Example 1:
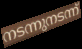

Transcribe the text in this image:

നടന്നുനടന്ന്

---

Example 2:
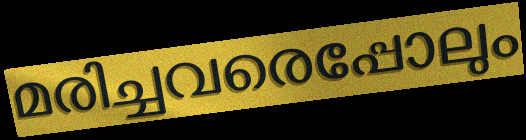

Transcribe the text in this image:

മരിച്ചവരെപ്പോലും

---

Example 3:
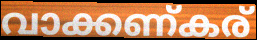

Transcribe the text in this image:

വാക്കണ്കര്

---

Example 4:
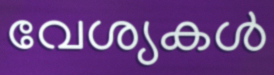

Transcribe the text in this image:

വേശ്യകൾ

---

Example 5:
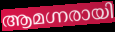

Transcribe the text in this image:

ആമഗ്നരായി